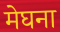
मेघना